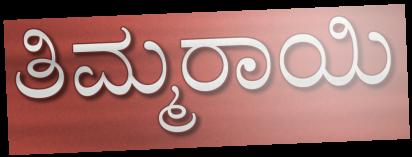
ತಿಮ್ಮರಾಯಿ